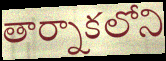
తార్నాకలోని